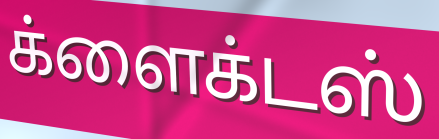
க்ளைக்டஸ்